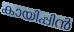
കായിപ്പിൻ